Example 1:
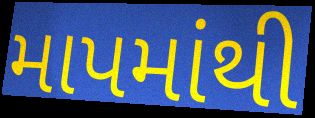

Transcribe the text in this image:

માપમાંથી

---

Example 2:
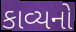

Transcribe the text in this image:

કાવ્યનો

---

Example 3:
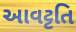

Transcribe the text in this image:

આવટ્ટતિ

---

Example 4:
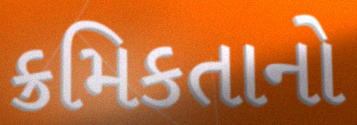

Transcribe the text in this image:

ક્રમિકતાનો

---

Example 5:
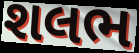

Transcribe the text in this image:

શલભ